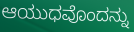
ಆಯುಧವೊಂದನ್ನು